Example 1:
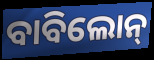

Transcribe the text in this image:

ବାବିଲୋନ୍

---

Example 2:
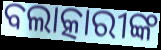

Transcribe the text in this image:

ବଲାତ୍କାରୀଙ୍କ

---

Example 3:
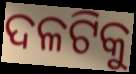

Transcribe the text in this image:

ଦଳଟିକୁ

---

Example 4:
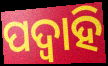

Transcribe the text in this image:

ପଦ୍ଵାହି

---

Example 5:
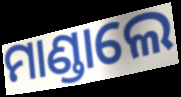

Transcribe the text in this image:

ମାଣ୍ଡାଲେ